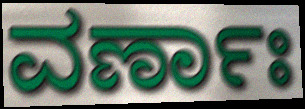
ವರ್ಣಾಃ